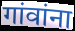
गांवांना